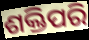
ଶକ୍ତିପରି